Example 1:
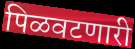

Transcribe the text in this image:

पिळवटणारी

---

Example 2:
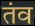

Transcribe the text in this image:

तंव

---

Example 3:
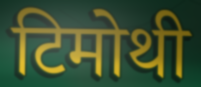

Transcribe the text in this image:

टिमोथी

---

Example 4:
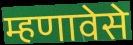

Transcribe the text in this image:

म्हणावेसे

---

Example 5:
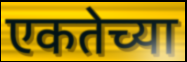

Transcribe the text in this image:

एकतेच्या